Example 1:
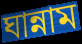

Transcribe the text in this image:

ঘান্নাম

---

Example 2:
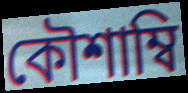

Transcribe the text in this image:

কৌশাম্বি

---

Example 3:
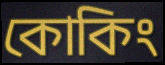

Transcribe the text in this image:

কোকিং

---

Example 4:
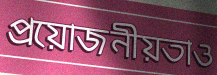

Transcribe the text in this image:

প্রয়োজনীয়তাও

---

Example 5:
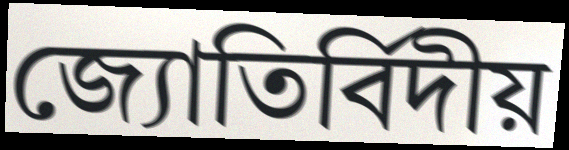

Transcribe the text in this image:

জ্যোতির্বিদীয়